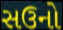
સઉનો